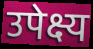
उपेक्ष्य